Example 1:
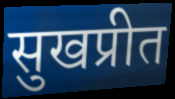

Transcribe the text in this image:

सुखप्रीत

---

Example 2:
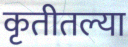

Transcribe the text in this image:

कृतीतल्या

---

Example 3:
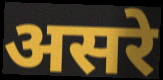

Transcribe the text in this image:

असरे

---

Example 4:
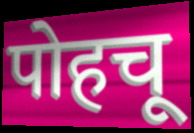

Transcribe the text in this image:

पोहचू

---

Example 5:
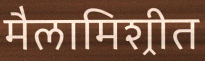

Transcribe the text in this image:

मैलामिश्रीत